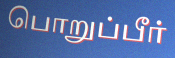
பொறுப்பீர்